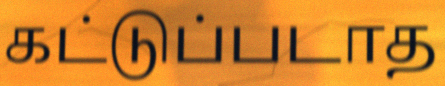
கட்டுப்படாத